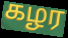
கழர